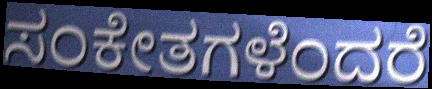
ಸಂಕೇತಗಳೆಂದರೆ